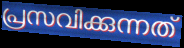
പ്രസവിക്കുന്നത്